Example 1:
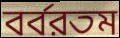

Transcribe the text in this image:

বর্বরতম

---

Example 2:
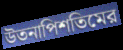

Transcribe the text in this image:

উতনাপিশতিমের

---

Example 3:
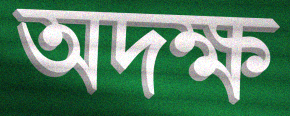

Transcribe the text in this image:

অদক্ষ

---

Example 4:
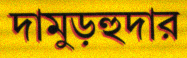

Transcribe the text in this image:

দামুড়হুদার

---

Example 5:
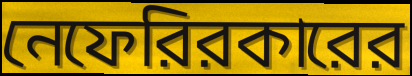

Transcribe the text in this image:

নেফেরিরকারের